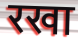
रखा